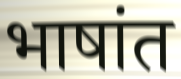
भाषांत